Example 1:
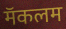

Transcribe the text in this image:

मॅकलम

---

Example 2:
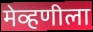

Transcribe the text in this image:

मेव्हणीला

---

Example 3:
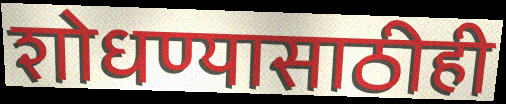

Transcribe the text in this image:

शोधण्यासाठीही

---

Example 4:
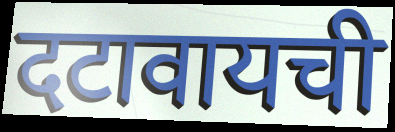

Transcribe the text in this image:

दटावायची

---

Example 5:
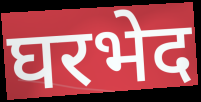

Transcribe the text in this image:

घरभेद